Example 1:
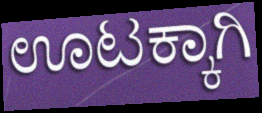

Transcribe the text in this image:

ಊಟಕ್ಕಾಗಿ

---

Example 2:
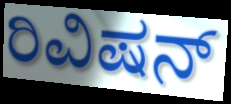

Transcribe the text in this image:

ರಿವಿಷನ್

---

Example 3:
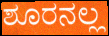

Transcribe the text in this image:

ಶೂರನಲ್ಲ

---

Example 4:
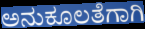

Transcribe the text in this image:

ಅನುಕೂಲತೆಗಾಗಿ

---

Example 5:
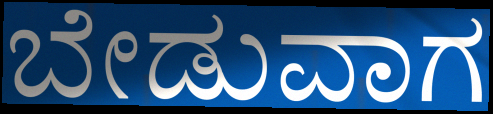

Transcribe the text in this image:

ಬೇಡುವಾಗ